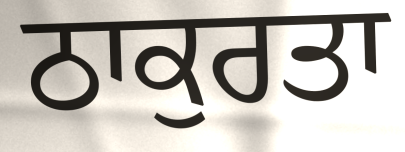
ਠਾਕੁਰਤਾ